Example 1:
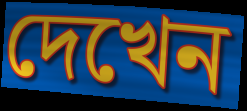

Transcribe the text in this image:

দেখেন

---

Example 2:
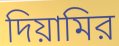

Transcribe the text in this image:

দিয়ামির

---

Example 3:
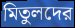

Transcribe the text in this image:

মিতুলদের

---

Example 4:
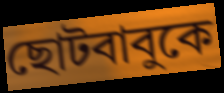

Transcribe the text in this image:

ছোটবাবুকে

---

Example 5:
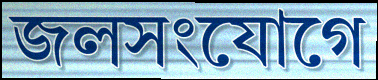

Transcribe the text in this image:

জলসংযোগে